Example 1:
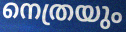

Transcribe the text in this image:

നെത്രയും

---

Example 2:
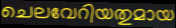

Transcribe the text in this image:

ചെലവേറിയതുമായ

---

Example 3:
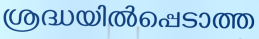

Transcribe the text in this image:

ശ്രദ്ധയിൽപ്പെടാത്ത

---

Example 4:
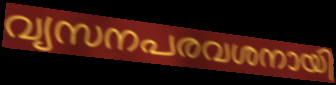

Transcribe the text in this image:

വ്യസനപരവശനായി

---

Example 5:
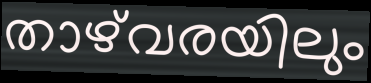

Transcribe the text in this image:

താഴ്‌വരയിലും